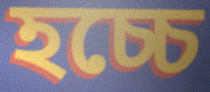
হচ্চে